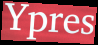
Ypres